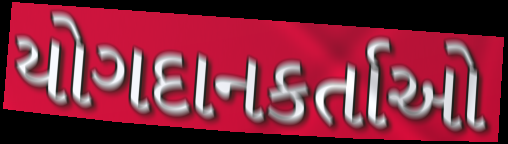
યોગદાનકર્તાઓ